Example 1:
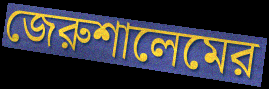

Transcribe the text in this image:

জেরুশালেমের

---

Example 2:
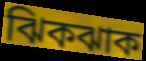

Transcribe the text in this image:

ঝিকঝাক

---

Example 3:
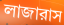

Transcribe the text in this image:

লাজারাস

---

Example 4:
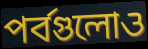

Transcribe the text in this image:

পর্বগুলোও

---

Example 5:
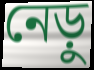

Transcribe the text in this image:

নেড়ু